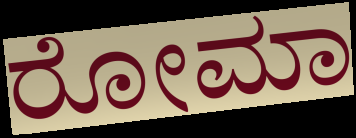
ರೋಮಾ